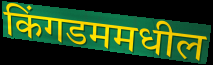
किंगडममधील